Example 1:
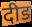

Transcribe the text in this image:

दीड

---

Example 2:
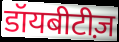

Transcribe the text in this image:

डॉयबीटीज़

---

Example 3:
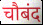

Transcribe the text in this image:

चौबंद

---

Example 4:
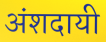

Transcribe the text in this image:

अंशदायी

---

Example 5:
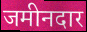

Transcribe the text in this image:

जमीनदार